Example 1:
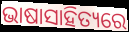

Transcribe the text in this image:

ଭାଷାସାହିତ୍ୟରେ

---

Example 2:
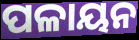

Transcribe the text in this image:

ପଳାୟନ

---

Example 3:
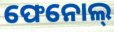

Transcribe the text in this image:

ଫେନୋଲ୍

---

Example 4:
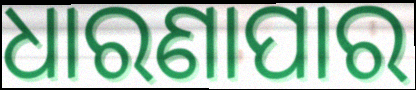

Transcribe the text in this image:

ଧାରଣାପାର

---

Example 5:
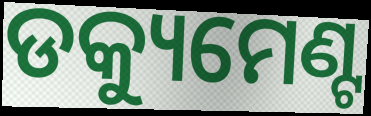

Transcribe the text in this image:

ଡକ୍ୟୁମେଣ୍ଟ